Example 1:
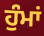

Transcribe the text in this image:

ਹੁੰਮਾਂ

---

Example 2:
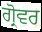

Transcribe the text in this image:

ਗ੍ਰੋਵਰ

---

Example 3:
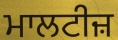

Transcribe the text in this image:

ਮਾਲਟੀਜ਼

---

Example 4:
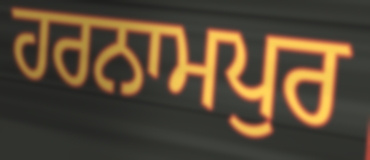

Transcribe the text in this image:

ਹਰਨਾਮਪੁਰ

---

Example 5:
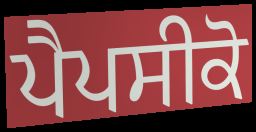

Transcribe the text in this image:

ਪੈਪਸੀਕੋ